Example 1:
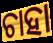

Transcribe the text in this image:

ଚାହା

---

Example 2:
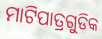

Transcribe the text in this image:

ମାଟିପାତ୍ରଗୁଡିକ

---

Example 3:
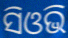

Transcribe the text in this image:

ସିଓଭି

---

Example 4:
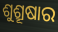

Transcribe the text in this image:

ଶୁଶ୍ରୂଷାର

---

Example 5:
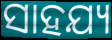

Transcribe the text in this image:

ସାହଯ୍ୟ